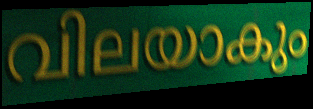
വിലയാകും